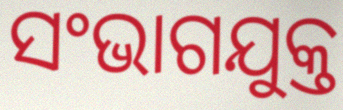
ସଂଭାଗଯୁକ୍ତ